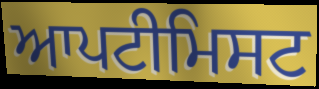
ਆਪਟੀਮਿਸਟ